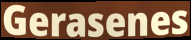
Gerasenes